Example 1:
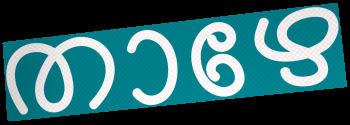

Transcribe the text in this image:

താഴേ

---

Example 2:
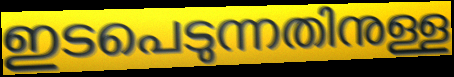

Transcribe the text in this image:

ഇടപെടുന്നതിനുള്ള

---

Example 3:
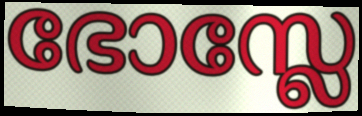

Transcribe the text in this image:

ഭോസ്ലേ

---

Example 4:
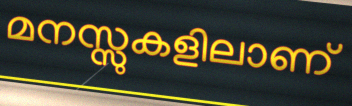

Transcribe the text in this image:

മനസ്സുകളിലാണ്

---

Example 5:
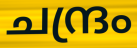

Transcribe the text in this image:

ചന്ദ്രം